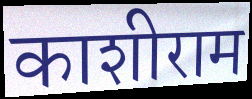
काशीराम